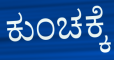
ಕುಂಚಕ್ಕೆ